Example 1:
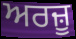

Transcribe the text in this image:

ਅਰਜ਼ੂ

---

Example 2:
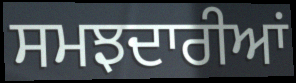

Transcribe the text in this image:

ਸਮਝਦਾਰੀਆਂ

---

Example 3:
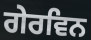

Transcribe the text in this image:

ਗੇਰਵਿਨ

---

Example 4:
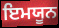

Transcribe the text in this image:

ਇਮਯੂਨ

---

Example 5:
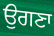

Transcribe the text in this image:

ਉਗਣਾ